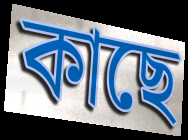
কাছে